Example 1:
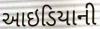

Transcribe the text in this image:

આઇડિયાની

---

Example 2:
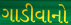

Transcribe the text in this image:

ગાડીવાનો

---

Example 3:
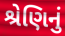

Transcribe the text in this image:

શ્રેણિનું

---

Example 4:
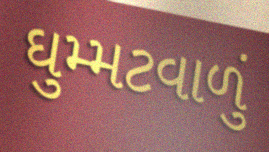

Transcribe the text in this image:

ઘુમ્મટવાળું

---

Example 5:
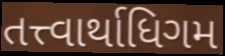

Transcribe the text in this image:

તત્ત્વાર્થાધિગમ